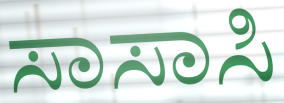
ಸಾಸಾಸಿ